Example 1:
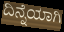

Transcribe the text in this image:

ದಿನ್ನೆಯಾಗಿ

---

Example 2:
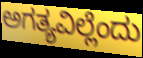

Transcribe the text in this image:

ಅಗತ್ಯವಿಲ್ಲೆಂದು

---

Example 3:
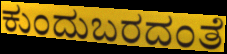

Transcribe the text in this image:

ಕುಂದುಬರದಂತೆ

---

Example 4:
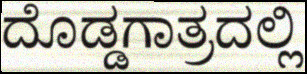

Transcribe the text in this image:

ದೊಡ್ಡಗಾತ್ರದಲ್ಲಿ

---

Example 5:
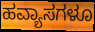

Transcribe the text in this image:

ಹವ್ಯಾಸಗಳೂ